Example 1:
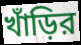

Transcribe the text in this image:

খাঁড়ির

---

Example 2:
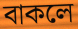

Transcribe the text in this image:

বাকলে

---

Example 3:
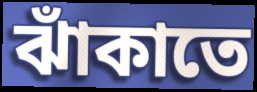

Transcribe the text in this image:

ঝাঁকাতে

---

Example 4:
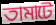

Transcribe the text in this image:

তামাটে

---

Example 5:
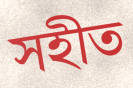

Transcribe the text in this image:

সহীত